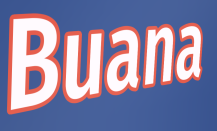
Buana